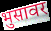
भुसावर